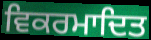
ਵਿਕਰਮਾਦਿਤ